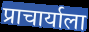
प्राचार्याला